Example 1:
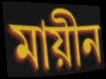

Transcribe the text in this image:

মায়ীন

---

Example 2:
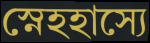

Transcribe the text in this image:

স্নেহহাস্যে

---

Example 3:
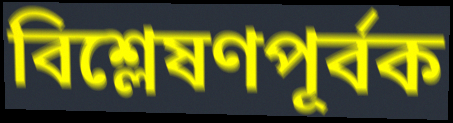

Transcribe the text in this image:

বিশ্লেষণপূর্বক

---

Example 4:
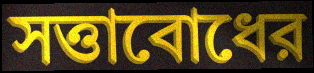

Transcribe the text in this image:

সত্তাবোধের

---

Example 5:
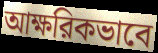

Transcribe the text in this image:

আক্ষরিকভাবে